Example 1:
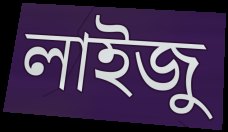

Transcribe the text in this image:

লাইজু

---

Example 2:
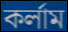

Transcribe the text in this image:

কর্লাম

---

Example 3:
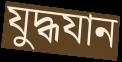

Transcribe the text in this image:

যুদ্ধযান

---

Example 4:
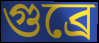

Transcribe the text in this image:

গুব্রে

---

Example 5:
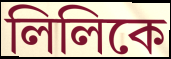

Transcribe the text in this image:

লিলিকে